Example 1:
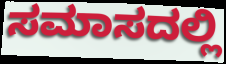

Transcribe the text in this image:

ಸಮಾಸದಲ್ಲಿ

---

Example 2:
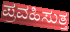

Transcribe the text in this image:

ಪ್ರವಹಿಸುತ್ತ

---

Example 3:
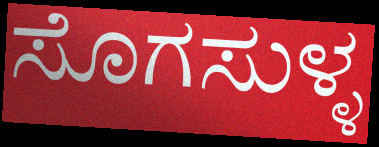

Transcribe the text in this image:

ಸೊಗಸುಳ್ಳ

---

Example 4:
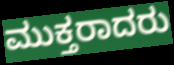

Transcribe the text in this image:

ಮುಕ್ತರಾದರು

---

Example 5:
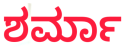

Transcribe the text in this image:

ಶರ್ಮಾ